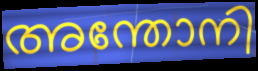
അന്തോനി